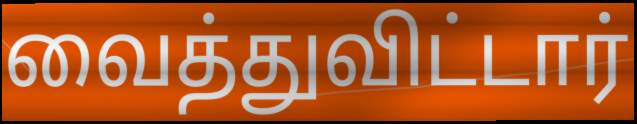
வைத்துவிட்டார்